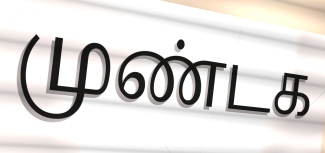
முண்டக